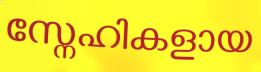
സ്നേഹികളായ